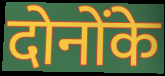
दोनोंके